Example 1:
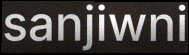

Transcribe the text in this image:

sanjiwni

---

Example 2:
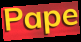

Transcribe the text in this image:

Pape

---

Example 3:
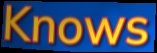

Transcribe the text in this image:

Knows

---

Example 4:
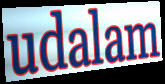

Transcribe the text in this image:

udalam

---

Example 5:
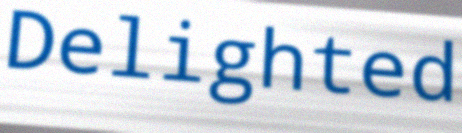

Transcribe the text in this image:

Delighted